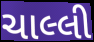
ચાલ્લી